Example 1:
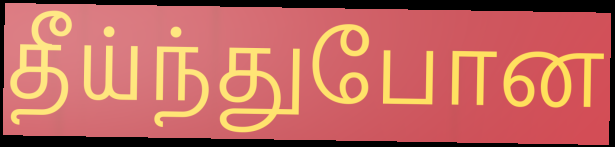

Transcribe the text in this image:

தீய்ந்துபோன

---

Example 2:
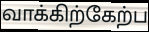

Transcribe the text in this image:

வாக்கிற்கேற்ப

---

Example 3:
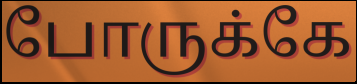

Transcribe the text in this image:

போருக்கே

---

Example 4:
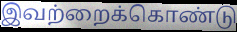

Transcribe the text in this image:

இவற்றைக்கொண்டு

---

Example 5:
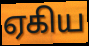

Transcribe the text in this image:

ஏகிய